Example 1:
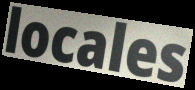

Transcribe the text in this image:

locales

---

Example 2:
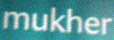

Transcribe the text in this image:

mukher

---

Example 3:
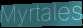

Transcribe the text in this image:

Myrtales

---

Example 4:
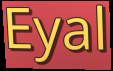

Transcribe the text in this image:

Eyal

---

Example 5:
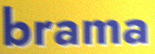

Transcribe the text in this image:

brama